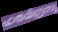
ഹതമിന്ദ്രസ്യ